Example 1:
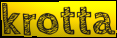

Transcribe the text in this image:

krotta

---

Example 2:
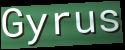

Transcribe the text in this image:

Gyrus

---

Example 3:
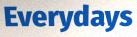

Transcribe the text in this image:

Everydays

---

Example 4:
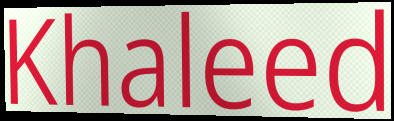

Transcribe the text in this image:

Khaleed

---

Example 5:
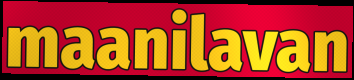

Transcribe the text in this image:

maanilavan